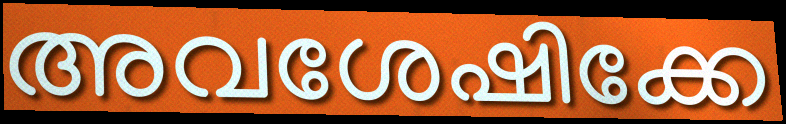
അവശേഷിക്കേ